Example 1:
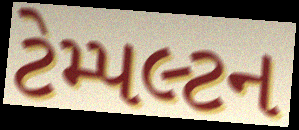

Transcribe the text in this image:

ટેમ્પલ્ટન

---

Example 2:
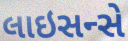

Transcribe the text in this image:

લાઇસન્સે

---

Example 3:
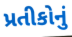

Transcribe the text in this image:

પ્રતીકોનું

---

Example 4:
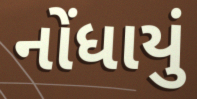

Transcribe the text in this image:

નોંધાયું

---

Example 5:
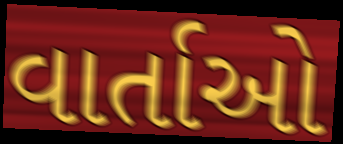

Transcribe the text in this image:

વાર્તાઓ